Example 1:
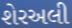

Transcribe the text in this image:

શેરઅલી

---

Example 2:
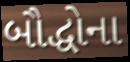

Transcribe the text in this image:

બૌદ્ધોના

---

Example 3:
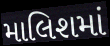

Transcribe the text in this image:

માલિશમાં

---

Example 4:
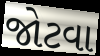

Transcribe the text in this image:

જોટવા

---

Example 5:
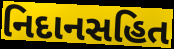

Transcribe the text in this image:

નિદાનસહિત